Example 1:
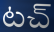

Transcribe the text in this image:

టచ్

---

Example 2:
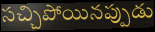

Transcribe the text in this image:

సచ్చిపోయినప్పుడు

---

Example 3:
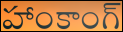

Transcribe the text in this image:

హాంకాంగ్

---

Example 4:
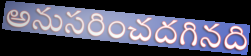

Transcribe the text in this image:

అనుసరించదగినది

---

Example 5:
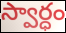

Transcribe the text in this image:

స్వార్ధం